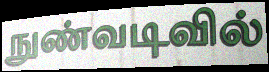
நுண்வடிவில்